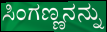
ಸಿಂಗಣ್ಣನನ್ನು